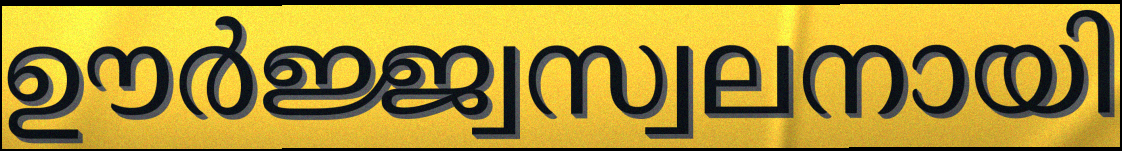
ഊർജ്ജ്വസ്വലനായി